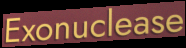
Exonuclease